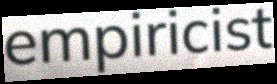
empiricist